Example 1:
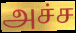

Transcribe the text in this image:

அச்ச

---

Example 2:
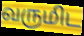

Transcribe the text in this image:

வருமிட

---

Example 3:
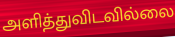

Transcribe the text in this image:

அளித்துவிடவில்லை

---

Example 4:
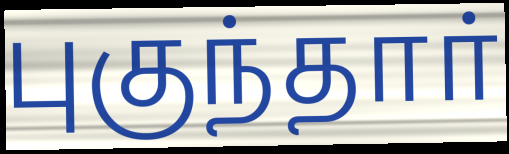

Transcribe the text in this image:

புகுந்தார்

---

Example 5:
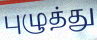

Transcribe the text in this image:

புழுத்து